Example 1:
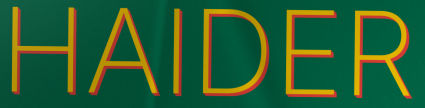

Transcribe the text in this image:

HAIDER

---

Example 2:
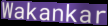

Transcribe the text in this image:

Wakankar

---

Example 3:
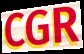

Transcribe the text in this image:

CGR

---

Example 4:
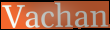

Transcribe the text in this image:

Vachan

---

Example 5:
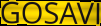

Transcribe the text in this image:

GOSAVI